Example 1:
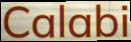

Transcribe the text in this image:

Calabi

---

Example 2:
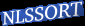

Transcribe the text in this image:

NLSSORT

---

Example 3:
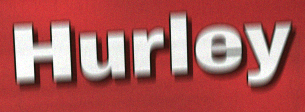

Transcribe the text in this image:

Hurley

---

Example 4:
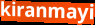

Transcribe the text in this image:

kiranmayi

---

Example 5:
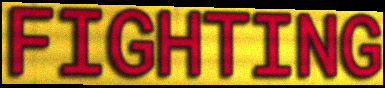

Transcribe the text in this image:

FIGHTING